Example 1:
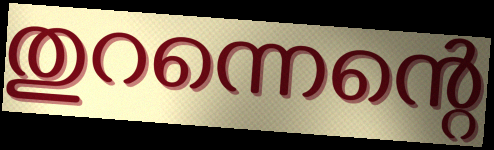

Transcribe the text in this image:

തുറന്നെന്റെ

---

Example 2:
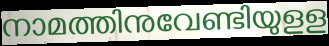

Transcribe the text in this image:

നാമത്തിനുവേണ്ടിയുളള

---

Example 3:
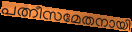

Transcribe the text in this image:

പത്നീസമേതനായി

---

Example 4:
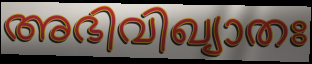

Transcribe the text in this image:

അഭിവിഖ്യാതഃ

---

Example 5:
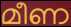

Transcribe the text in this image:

മീണ